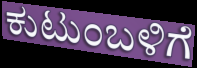
ಕುಟುಂಬಳಿಗೆ